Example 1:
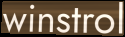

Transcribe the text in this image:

winstrol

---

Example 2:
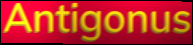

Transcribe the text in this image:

Antigonus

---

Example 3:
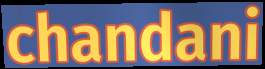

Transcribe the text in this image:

chandani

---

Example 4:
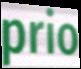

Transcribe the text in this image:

prio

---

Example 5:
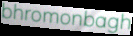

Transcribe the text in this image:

bhromonbagh